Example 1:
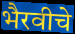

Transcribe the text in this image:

भैरवीचे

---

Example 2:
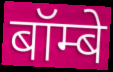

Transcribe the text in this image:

बॉम्बे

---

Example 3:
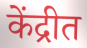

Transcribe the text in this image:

केंद्रीत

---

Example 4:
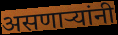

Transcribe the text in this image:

असणाऱ्यांनी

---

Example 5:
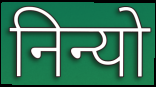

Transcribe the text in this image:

निन्यो